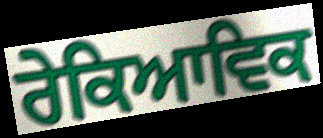
ਰੇਕਿਆਵਿਕ